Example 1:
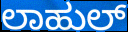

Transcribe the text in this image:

ಲಾಹುಲ್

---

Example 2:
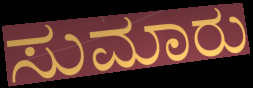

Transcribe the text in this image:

ಸುಮಾರು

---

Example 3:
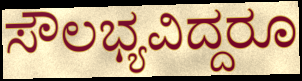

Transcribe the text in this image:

ಸೌಲಭ್ಯವಿದ್ದರೂ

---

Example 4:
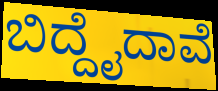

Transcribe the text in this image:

ಬಿದ್ದೈದಾವೆ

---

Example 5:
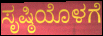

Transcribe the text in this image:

ಸೃಷ್ಠಿಯೊಳಗೆ